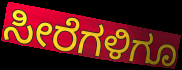
ಸೀರೆಗಳಿಗೂ